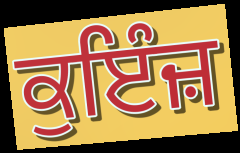
ਕੁਇੰਜ਼